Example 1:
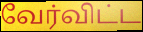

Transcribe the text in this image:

வேர்விட்ட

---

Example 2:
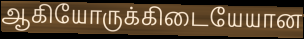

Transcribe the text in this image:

ஆகியோருக்கிடையேயான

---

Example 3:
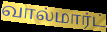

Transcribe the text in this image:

வால்மார்ட்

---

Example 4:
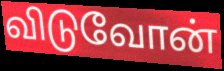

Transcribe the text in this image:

விடுவோன்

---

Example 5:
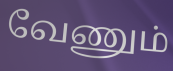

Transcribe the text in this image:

வேணும்